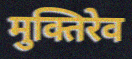
मुक्तिरेव